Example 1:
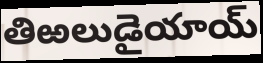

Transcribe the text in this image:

తిఱలుడైయాయ్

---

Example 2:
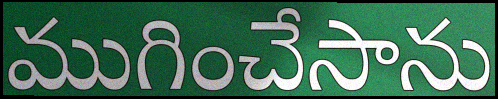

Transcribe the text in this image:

ముగించేసాను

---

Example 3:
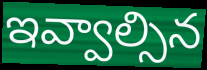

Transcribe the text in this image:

ఇవ్వాల్సిన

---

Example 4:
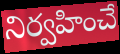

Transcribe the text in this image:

నిర్వహించే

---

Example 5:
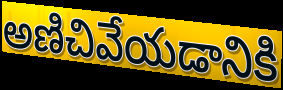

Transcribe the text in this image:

అణిచివేయడానికి